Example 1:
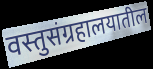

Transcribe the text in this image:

वस्तुसंग्रहालयातील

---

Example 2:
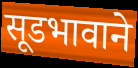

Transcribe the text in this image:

सूडभावाने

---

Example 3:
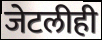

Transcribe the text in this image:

जेटलीही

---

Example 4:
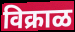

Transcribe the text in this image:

विक्राळ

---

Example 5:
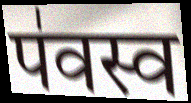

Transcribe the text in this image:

प॑वस्व